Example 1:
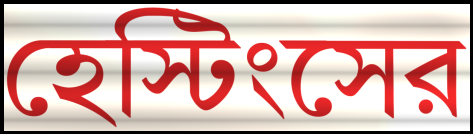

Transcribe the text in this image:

হেস্টিংসের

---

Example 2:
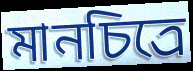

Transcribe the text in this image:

মানচিত্রে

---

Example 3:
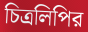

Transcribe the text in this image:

চিত্রলিপির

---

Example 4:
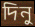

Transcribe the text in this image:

দিনু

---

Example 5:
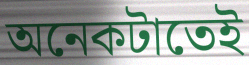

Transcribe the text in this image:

অনেকটাতেই